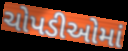
ચોપડીઓમાં